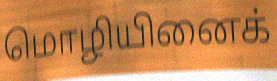
மொழியினைக்